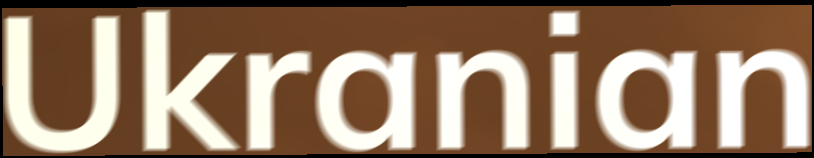
Ukranian